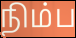
நிம்ப